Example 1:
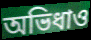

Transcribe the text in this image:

অভিধাও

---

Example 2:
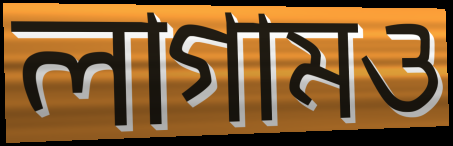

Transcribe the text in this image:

লাগামও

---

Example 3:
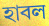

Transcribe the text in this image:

হাবল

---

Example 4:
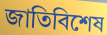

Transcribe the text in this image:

জাতিবিশেষ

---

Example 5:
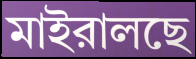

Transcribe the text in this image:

মাইরালছে